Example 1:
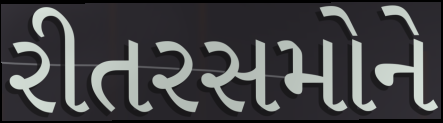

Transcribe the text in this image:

રીતરસમોને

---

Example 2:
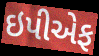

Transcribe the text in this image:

ઇપીએફ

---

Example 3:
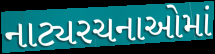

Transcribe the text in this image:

નાટ્યરચનાઓમાં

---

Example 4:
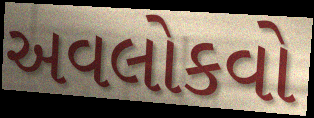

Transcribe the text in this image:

અવલોકવો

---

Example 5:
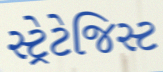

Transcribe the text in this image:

સ્ટ્રેટેજિસ્ટ